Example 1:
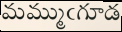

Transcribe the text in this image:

మమ్ముఁగూడ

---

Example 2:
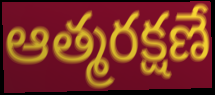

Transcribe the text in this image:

ఆత్మరక్షణే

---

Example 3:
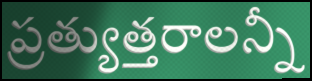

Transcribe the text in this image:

ప్రత్యుత్తరాలన్నీ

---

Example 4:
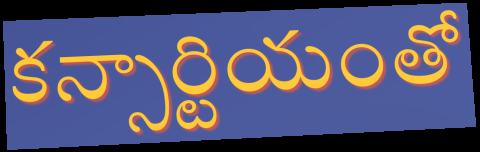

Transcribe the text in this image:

కన్సార్టియంతో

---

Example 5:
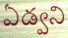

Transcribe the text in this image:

ఏడ్వని